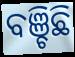
ବଞ୍ଚିଛି